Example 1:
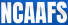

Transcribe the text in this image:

NCAAFS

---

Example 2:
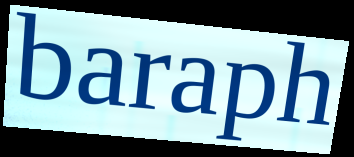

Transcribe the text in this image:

baraph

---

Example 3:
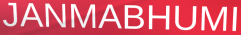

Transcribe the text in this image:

JANMABHUMI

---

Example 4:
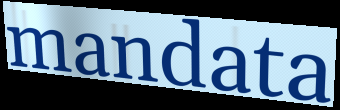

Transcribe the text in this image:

mandata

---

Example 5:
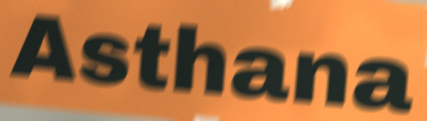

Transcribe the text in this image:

Asthana